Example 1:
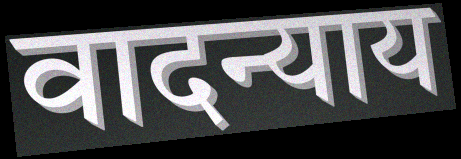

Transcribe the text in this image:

वादन्याय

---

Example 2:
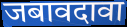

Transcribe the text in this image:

जबावदावा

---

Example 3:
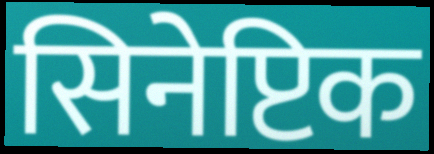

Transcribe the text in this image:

सिनेप्टिक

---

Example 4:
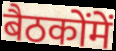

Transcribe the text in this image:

बैठकोंमें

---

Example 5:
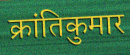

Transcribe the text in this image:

क्रांतिकुमार